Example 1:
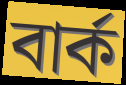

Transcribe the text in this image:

বার্ক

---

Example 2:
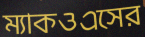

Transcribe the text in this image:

ম্যাকওএসের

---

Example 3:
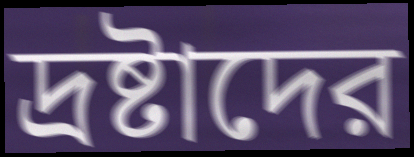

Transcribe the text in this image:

দ্রষ্টাদের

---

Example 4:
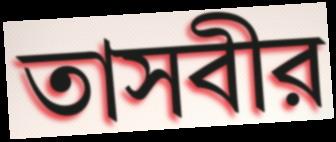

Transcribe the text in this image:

তাসবীর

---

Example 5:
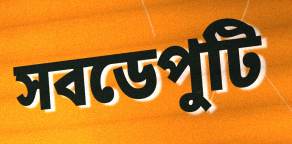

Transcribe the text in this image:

সবডেপুটি